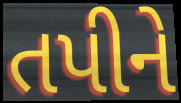
તપીને